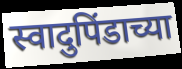
स्वादुपिंडाच्या